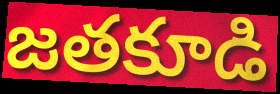
జతకూడి